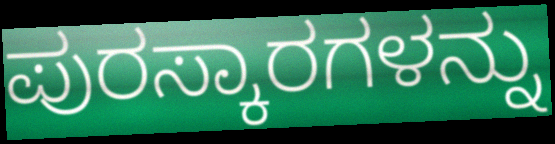
ಪುರಸ್ಕಾರಗಳನ್ನು